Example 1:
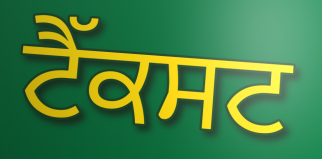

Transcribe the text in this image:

ਟੈੱਕਸਟ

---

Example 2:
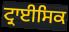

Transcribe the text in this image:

ਟ੍ਰਾਈਸਿਕ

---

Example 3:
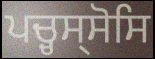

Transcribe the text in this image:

ਪਚ੍ਚਸ੍ਸੋਸਿ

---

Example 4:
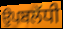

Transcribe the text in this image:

ਉਪਬਲੱਧੀ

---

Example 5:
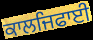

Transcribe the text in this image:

ਕਾਲਜਿਫਾਈ